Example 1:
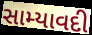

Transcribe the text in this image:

સામ્યાવદી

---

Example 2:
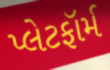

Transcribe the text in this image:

પ્લેટફૉર્મ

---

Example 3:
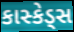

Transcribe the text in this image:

કાસ્કેડ્સ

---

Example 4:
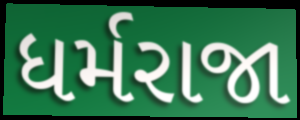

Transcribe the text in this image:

ધર્મરાજા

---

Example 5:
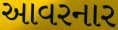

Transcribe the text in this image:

આવરનાર